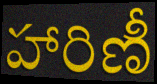
హారిణీ